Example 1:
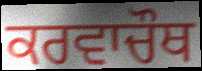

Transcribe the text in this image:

ਕਰਵਾਚੌਥ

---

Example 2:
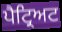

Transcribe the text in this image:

ਪੈਟ੍ਰਿਅਟ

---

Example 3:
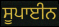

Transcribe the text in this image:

ਸੂਪਾਈਨ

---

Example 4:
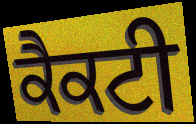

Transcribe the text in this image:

ਕੈਕਟੀ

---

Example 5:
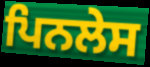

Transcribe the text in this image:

ਪਿਨਲੇਸ